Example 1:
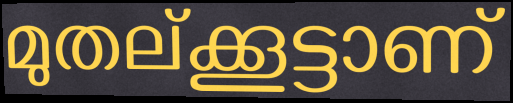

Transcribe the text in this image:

മുതല്ക്കൂട്ടാണ്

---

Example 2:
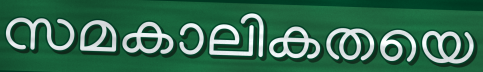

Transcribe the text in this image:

സമകാലികതയെ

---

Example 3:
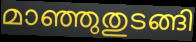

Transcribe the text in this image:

മാഞ്ഞുതുടങ്ങി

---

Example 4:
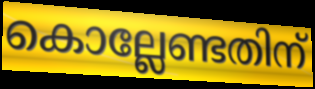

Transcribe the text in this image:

കൊല്ലേണ്ടതിന്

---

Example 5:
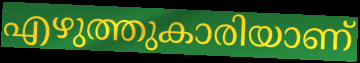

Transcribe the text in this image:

എഴുത്തുകാരിയാണ്